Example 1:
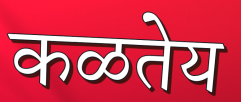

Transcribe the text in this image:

कळतेय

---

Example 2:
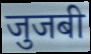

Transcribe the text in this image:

जुजबी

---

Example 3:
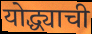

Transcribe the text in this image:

योद्ध्याची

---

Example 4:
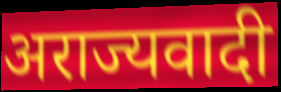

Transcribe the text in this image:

अराज्यवादी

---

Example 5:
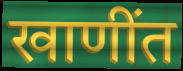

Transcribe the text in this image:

खाणींत